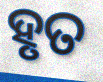
ହୃତ